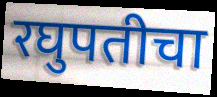
रघुपतीचा